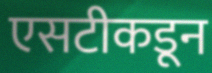
एसटीकडून